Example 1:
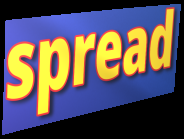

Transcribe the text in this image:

spread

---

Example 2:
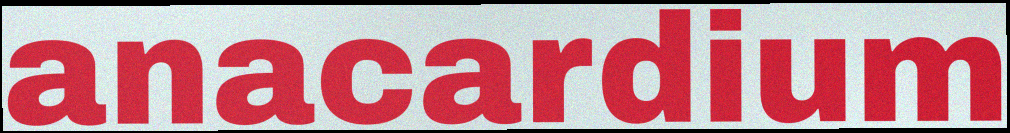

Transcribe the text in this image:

anacardium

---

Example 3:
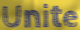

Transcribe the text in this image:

Unite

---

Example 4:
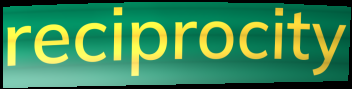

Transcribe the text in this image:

reciprocity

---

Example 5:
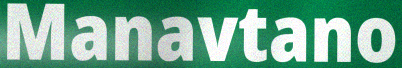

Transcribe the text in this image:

Manavtano